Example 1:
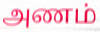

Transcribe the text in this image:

அணம்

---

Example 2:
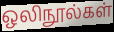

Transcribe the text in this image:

ஒலிநூல்கள்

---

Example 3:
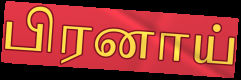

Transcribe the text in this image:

பிரனாய்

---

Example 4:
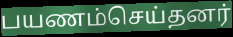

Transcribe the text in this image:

பயணம்செய்தனர்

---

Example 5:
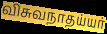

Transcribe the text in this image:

விசுவநாதய்யர்